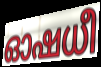
ഓഷധീ